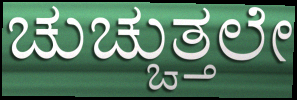
ಚುಚ್ಚುತ್ತಲೇ